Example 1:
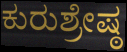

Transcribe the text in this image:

ಕುರುಶ್ರೇಷ್ಠ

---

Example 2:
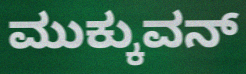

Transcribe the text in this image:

ಮುಕ್ಕುವನ್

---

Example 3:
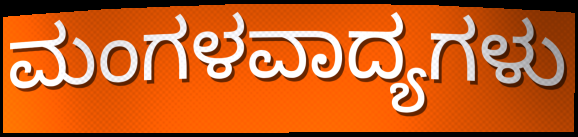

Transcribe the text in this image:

ಮಂಗಳವಾದ್ಯಗಳು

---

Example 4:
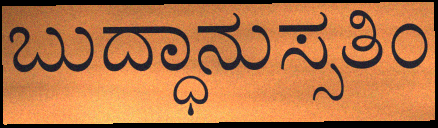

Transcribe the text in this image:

ಬುದ್ಧಾನುಸ್ಸತಿಂ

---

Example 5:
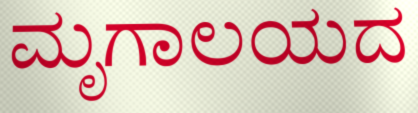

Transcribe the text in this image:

ಮೃಗಾಲಯದ